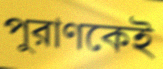
পুরাণকেই